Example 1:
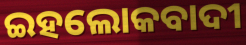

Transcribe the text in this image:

ଇହଲୋକବାଦୀ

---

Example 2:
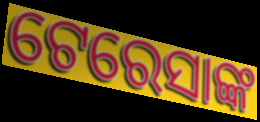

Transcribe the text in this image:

ଟେରେସାଙ୍କ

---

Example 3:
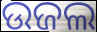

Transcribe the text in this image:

ଉଜଲ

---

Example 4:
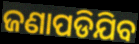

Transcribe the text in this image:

ଜଣାପଡିଯିବ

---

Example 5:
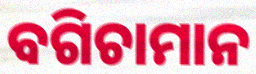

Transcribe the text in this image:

ବଗିଚାମାନ